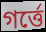
গর্ত্তে